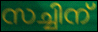
സച്ചിന്